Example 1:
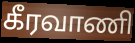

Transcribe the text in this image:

கீரவாணி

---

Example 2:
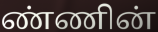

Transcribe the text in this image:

ண்ணின்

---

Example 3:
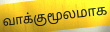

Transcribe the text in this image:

வாக்குமூலமாக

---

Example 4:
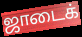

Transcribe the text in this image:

ஜாடைக்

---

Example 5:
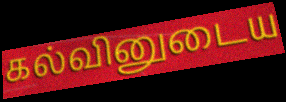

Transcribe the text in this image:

கல்வினுடைய